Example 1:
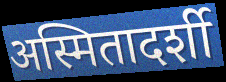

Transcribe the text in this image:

अस्मितादर्शी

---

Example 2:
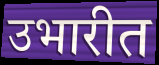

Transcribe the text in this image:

उभारीत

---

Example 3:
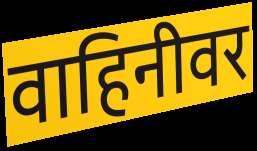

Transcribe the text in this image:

वाहिनीवर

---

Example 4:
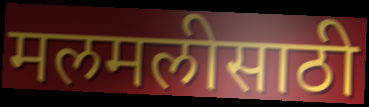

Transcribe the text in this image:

मलमलीसाठी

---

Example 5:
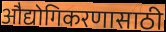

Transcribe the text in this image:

औद्योगिकरणासाठी